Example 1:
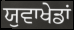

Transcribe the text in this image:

ਯੁਵਾਖੇਡਾਂ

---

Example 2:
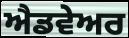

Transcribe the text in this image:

ਐਡਵੇਅਰ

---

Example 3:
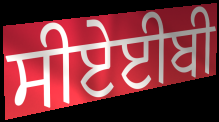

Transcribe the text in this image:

ਸੀਏਈਬੀ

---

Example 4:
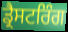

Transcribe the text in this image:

ਡ੍ਰੈਸਟਰਿੰਗ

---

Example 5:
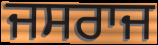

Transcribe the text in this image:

ਜਸਰਾਜ